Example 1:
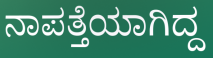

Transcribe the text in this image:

ನಾಪತ್ತೆಯಾಗಿದ್ದ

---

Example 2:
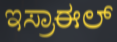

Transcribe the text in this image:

ಇಸ್ರಾಈಲ್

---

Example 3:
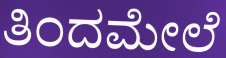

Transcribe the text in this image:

ತಿಂದಮೇಲೆ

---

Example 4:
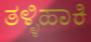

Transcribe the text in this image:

ತಳ್ಳಿಹಾಕಿ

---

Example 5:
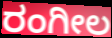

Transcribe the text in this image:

ರಂಗೀಲ